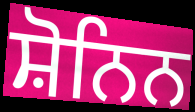
ਸ਼ੋਨਿਨ